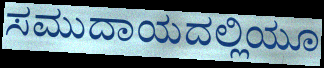
ಸಮುದಾಯದಲ್ಲಿಯೂ